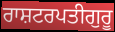
ਰਾਸ਼ਟਰਪਤੀਗੁਰੂ